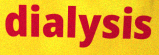
dialysis